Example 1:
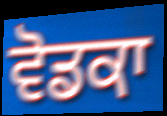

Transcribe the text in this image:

ਵੋਡਕਾ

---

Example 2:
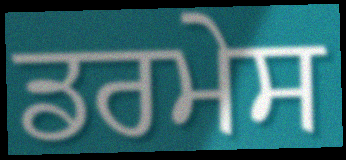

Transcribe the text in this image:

ਡਰਮੇਸ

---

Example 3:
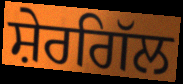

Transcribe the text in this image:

ਸ਼ੇਰਗਿੱਲ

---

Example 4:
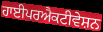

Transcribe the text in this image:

ਹਾਈਪਰਐਕਟੀਵੇਸ਼ਨ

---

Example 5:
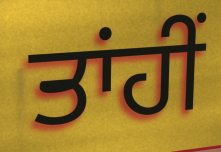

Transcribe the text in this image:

ਤਾਂਹੀਂ